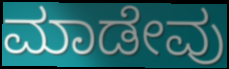
ಮಾಡೇವು